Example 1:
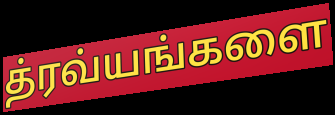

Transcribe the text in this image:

த்ரவ்யங்களை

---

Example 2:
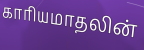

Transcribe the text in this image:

காரியமாதலின்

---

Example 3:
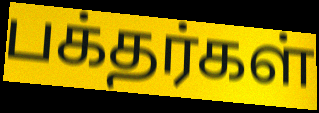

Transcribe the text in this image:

பக்தர்கள்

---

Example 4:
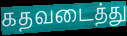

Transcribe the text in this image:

கதவடைத்து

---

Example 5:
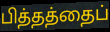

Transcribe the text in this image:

பித்தத்தைப்